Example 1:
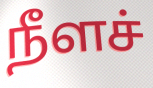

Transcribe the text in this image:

நீளச்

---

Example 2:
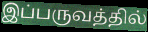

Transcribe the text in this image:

இப்பருவத்தில்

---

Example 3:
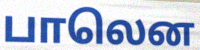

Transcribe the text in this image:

பாலென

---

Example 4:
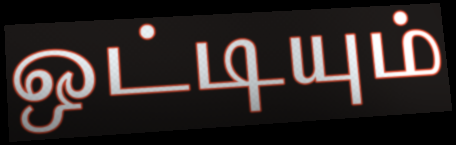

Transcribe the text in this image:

ஒட்டியும்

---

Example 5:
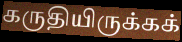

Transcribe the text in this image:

கருதியிருக்கக்